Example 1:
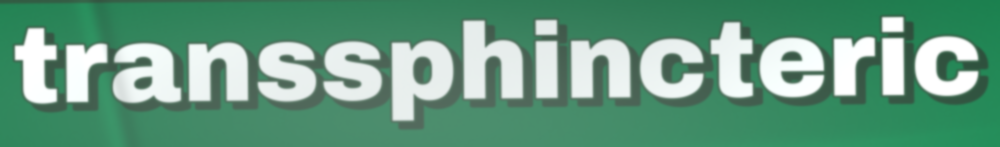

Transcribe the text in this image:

transsphincteric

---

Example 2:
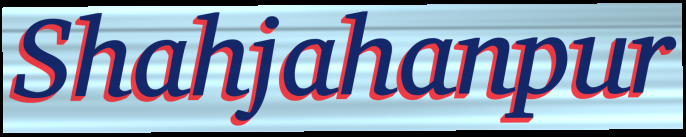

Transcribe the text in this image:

Shahjahanpur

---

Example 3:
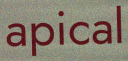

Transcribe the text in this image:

apical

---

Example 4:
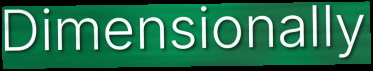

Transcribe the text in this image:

Dimensionally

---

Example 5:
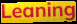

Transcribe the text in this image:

Leaning